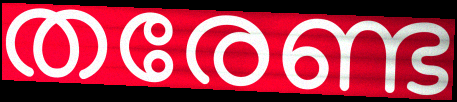
തരേണ്ട